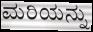
ಮರಿಯನ್ನು